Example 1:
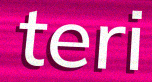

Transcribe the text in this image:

teri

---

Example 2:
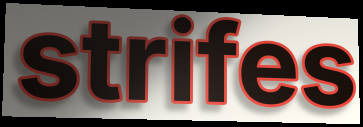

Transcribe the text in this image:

strifes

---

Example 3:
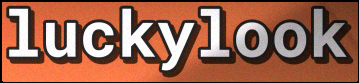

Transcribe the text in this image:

luckylook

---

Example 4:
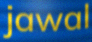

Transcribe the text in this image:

jawal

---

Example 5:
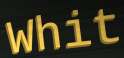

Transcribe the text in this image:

Whit